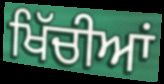
ਖਿੱਚੀਆਂ